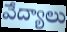
వేద్యాలు